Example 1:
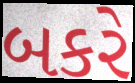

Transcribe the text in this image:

બકરે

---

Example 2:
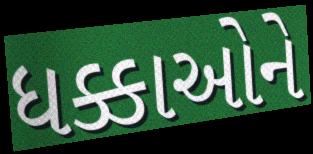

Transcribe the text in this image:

ધક્કાઓને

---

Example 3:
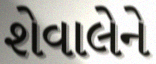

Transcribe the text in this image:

શેવાલેને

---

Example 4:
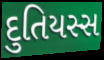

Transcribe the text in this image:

દુતિયસ્સ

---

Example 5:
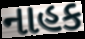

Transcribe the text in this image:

નાહક